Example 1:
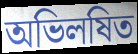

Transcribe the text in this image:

অভিলষিত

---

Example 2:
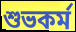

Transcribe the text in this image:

শুভকর্ম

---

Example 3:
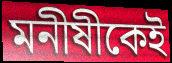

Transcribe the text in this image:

মনীষীকেই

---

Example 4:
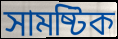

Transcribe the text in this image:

সামষ্টিক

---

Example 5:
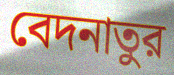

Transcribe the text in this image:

বেদনাতুর